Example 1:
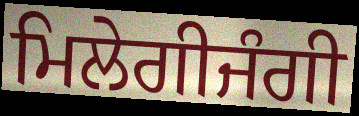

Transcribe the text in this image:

ਮਿਲੇਗੀਜੰਗੀ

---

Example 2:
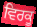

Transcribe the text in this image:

ਵਿਰਕੂ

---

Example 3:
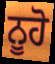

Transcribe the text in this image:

ਨੂਹੋ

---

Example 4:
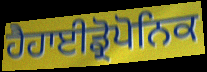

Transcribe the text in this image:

ਹੈਹਾਈਡ੍ਰੋਪੋਨਿਕ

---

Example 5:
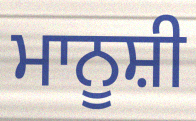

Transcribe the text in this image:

ਮਾਨੂਸ਼ੀ